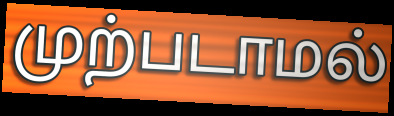
முற்படாமல்